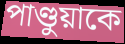
পাণ্ডুয়াকে